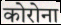
कोरोना